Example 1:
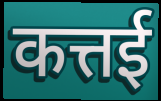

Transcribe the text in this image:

कत्तई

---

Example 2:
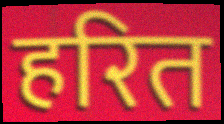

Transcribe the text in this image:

हरित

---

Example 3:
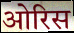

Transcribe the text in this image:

ओरिस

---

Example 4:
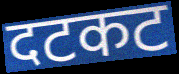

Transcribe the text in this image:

दटकट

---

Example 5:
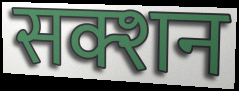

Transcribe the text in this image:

सक्शन